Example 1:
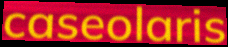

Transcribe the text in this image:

caseolaris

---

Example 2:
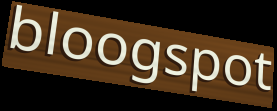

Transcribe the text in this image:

bloogspot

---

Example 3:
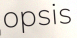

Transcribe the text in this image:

opsis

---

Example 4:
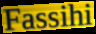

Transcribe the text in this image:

Fassihi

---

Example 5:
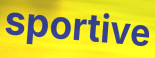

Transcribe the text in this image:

sportive